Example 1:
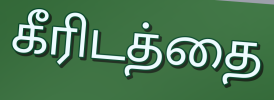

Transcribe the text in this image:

கீரிடத்தை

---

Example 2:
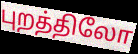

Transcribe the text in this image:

புறத்திலோ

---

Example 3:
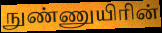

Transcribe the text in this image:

நுண்ணுயிரின்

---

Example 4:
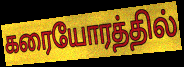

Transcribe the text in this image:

கரையோரத்தில்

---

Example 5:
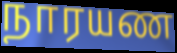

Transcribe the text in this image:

நாரயண